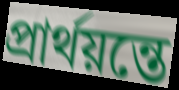
প্রার্থয়ন্তে